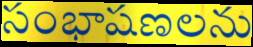
సంభాషణలను